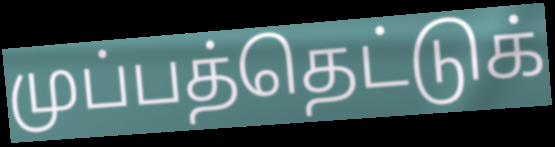
முப்பத்தெட்டுக்